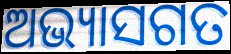
ଅଭ୍ଯାସଗତ